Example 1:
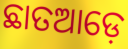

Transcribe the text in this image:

ଛାତଆଡ଼େ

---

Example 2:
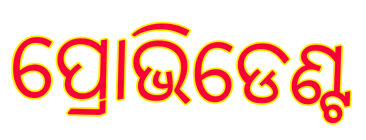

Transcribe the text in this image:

ପ୍ରୋଭିଡେଣ୍ଟ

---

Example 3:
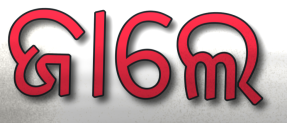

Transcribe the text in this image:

ଜାଲେ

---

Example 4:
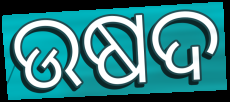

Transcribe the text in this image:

ଉଷଦ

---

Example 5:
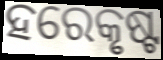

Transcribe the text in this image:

ହରେକୃଷ୍ଟ